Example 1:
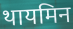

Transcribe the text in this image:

थायमिन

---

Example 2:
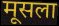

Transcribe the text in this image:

मूसला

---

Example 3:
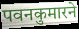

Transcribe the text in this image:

पवनकुमारने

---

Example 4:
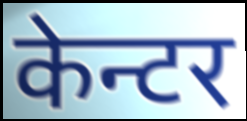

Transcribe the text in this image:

केन्टर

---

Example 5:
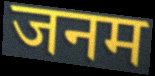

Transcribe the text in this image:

जनम